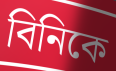
বিনিকে